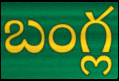
బంగ్ల